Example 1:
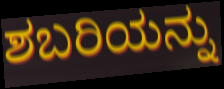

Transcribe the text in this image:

ಶಬರಿಯನ್ನು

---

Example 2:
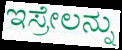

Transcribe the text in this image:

ಇಸ್ರೇಲನ್ನು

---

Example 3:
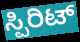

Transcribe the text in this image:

ಸ್ಪಿರಿಟ್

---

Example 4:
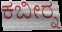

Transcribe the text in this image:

ಕಬೀರ್‍ನ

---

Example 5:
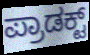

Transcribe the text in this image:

ಪ್ರಾಡಕ್ಟ್